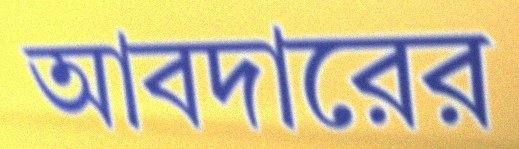
আবদারের